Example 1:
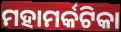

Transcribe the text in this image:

ମହାମର୍କଟିକା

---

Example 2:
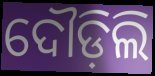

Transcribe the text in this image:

ଦୌଡ଼ିଲି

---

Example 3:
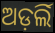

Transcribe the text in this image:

ଅଡ଼ର୍ଲି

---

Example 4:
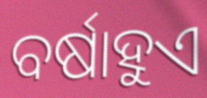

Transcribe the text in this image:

ବର୍ଷାହୁଏ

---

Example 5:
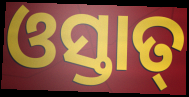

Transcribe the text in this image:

ଓସ୍ତାତ୍